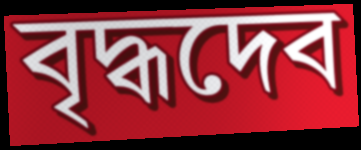
বৃদ্ধদেব